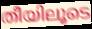
തീയിലൂടെ